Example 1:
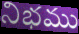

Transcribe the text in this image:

నిభము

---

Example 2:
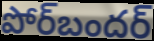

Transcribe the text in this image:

పోర్‌బందర్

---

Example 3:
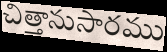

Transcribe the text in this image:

చిత్తానుసారము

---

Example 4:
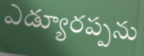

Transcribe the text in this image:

ఎడ్యూరప్పను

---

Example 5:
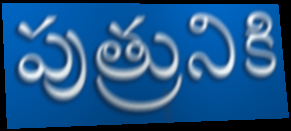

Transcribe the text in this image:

పుత్రునికి